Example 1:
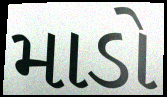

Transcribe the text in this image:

માડો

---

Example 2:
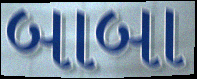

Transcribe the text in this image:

બાબા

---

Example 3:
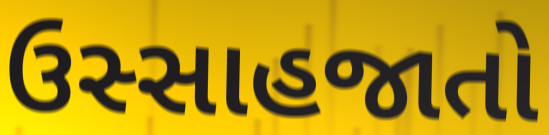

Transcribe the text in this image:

ઉસ્સાહજાતો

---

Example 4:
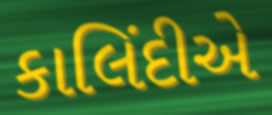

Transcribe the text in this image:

કાલિંદીએ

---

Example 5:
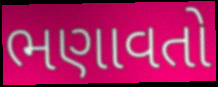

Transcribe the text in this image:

ભણાવતો